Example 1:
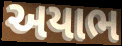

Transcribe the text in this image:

અયાભ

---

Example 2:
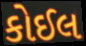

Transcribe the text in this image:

કોઈલ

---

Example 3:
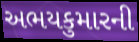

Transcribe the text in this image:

અભયકુમારની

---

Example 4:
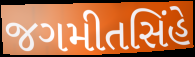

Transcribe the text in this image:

જગમીતસિંહે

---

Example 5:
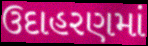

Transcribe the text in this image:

ઉદાહરણમાં